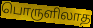
பொருளிலாத